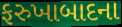
ફરુખાબાદના